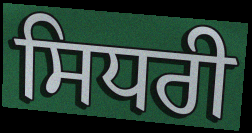
ਸਿਧਰੀ